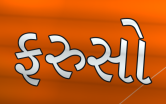
ફરુસો